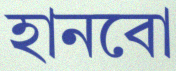
হানবো